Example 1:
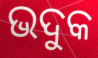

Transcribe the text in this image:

ଭଦୁକ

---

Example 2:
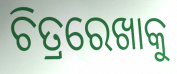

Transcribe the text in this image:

ଚିତ୍ରରେଖାକୁ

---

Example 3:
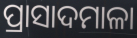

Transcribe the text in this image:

ପ୍ରାସାଦମାଳା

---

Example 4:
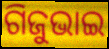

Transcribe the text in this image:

ଗିଜୁଭାଇ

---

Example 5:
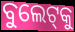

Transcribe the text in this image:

ବୁଲେଟ୍‌କୁ